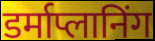
डर्माप्लानिंग